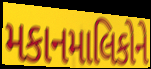
મકાનમાલિકોને